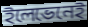
ইলেভেনেই